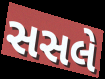
સસલે